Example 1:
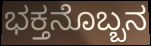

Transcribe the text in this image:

ಭಕ್ತನೊಬ್ಬನ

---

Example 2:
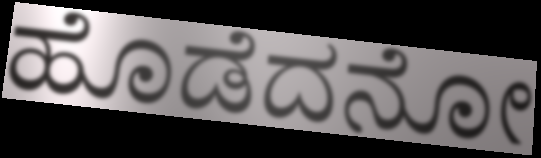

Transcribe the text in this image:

ಹೊಡೆದನೋ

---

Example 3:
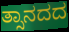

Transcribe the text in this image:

ತ್ಸಾನದದ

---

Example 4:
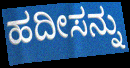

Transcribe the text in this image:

ಹದೀಸನ್ನು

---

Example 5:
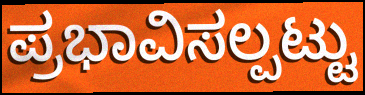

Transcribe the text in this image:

ಪ್ರಭಾವಿಸಲ್ಪಟ್ಟು